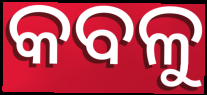
କବଳୁ